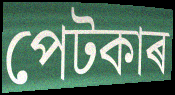
পেটকাৰ